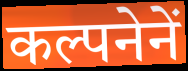
कल्पनेनें